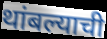
थांबल्याची